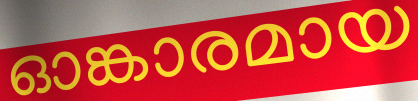
ഓങ്കാരമായ